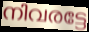
നിവരട്ടേ